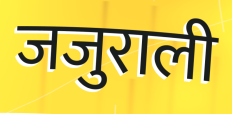
जजुराली